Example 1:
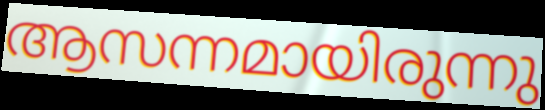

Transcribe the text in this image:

ആസന്നമായിരുന്നു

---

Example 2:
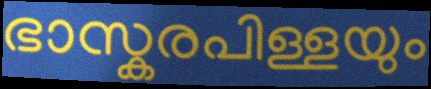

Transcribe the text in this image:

ഭാസ്കരപിള്ളയും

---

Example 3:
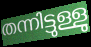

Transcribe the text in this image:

തന്നിട്ടുള്ളു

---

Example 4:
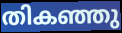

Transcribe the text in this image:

തികഞ്ഞു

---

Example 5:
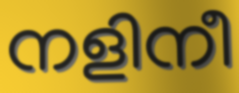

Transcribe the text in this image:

നളിനീ